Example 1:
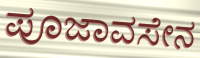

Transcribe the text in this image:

ಪೂಜಾವಸೇನ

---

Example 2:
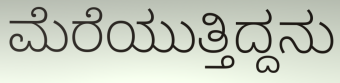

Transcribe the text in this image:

ಮೆರೆಯುತ್ತಿದ್ದನು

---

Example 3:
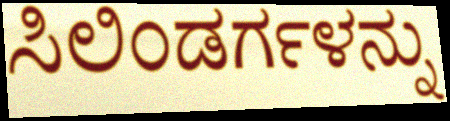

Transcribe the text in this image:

ಸಿಲಿಂಡರ್ಗಳನ್ನು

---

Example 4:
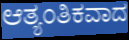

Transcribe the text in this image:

ಆತ್ಯಂತಿಕವಾದ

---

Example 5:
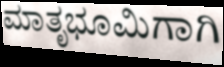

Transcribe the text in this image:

ಮಾತೃಭೂಮಿಗಾಗಿ